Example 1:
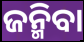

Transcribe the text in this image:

ଜନ୍ମିବା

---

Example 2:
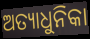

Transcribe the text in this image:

ଅତ୍ୟାଧୁନିକା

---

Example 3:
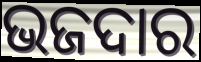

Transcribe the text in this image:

ଭଜଦାର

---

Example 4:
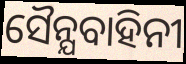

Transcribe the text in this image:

ସୈନ୍ଯବାହିନୀ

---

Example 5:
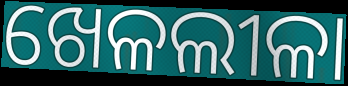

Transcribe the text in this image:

ଖେଳଲୀଳା